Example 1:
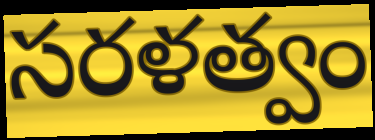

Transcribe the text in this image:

సరళత్వం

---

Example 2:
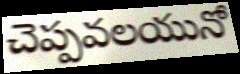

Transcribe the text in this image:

చెప్పవలయునో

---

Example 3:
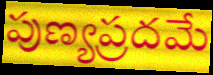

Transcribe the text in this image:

పుణ్యప్రదమే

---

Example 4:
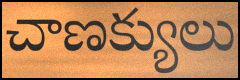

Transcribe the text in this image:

చాణక్యులు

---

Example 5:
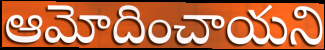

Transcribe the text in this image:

ఆమోదించాయని